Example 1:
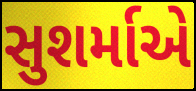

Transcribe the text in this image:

સુશર્માએ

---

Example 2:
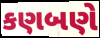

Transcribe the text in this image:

કણબણે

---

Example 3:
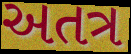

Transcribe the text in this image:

અતત્ર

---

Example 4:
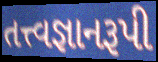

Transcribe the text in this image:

તત્ત્વજ્ઞાનરૂપી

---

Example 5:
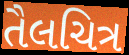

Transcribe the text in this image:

તૈલચિત્ર